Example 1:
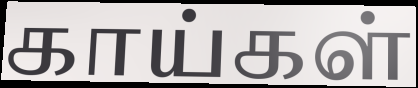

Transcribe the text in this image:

காய்கள்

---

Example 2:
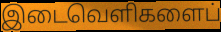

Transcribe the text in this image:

இடைவெளிகளைப்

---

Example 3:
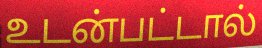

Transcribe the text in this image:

உடன்பட்டால்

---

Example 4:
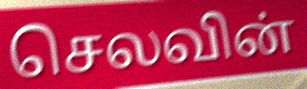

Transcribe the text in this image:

செலவின்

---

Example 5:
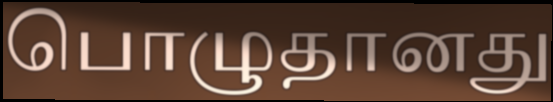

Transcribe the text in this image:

பொழுதானது